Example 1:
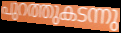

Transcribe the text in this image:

പുറത്തുകടന്നു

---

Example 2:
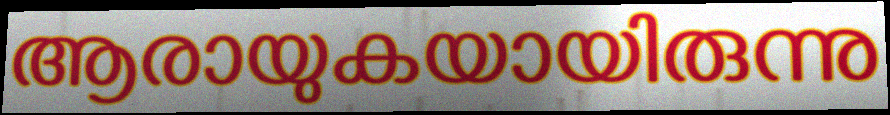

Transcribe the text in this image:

ആരായുകയായിരുന്നു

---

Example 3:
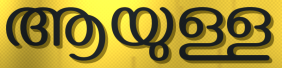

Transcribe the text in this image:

ആയുള്ള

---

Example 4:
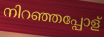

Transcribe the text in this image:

നിറഞ്ഞപ്പോള്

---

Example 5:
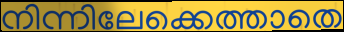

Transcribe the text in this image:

നിന്നിലേക്കെത്താതെ